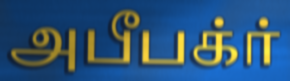
அபீபக்ர்